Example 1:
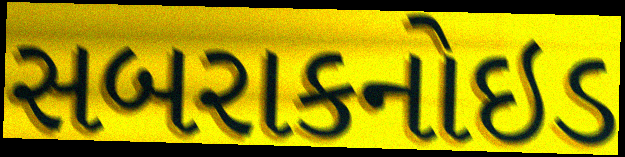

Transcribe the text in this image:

સબરાકનોઇડ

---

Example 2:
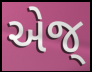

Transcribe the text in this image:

એજ્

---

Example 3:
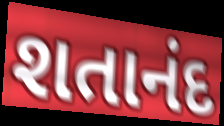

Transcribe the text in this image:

શતાનંદ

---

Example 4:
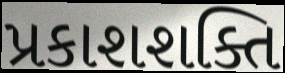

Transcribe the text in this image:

પ્રકાશશક્તિ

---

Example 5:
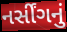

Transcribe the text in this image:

નર્સીંગનું